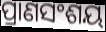
ପ୍ରାଣସଂଶୟ